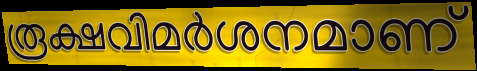
രൂക്ഷവിമർശനമാണ്